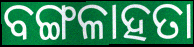
ବଙ୍ଗଳାହତା